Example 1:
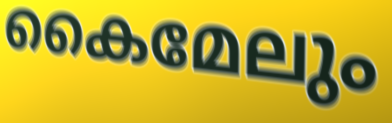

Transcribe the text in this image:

കൈമേലും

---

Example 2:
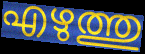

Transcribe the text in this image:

എഴുത്തു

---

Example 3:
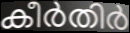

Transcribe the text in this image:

കീർതിർ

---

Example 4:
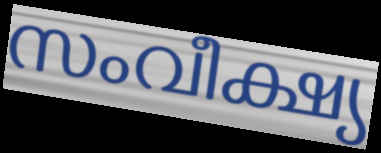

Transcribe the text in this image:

സംവീക്ഷ്യ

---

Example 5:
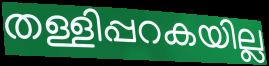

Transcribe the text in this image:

തള്ളിപ്പറകയില്ല